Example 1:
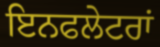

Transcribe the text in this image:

ਇਨਫਲੇਟਰਾਂ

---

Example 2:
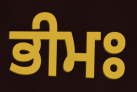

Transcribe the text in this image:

ਭੀਮਃ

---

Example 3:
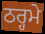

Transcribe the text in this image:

ਠਰ੍ਹਮੇ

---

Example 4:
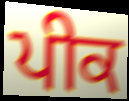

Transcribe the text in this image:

ਪੀਕ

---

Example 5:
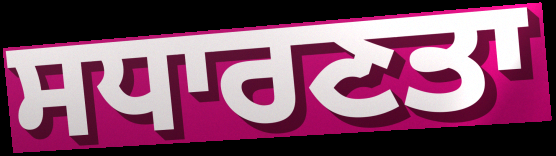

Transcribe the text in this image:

ਸਧਾਰਣਤਾ